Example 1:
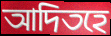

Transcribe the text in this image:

আদিতহে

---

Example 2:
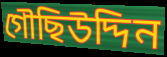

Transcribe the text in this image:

গৌছিউদ্দিন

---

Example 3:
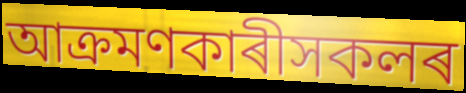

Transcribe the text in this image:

আক্ৰমণকাৰীসকলৰ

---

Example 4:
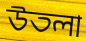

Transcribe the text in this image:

উতলা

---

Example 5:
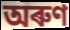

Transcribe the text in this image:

অৰুণ